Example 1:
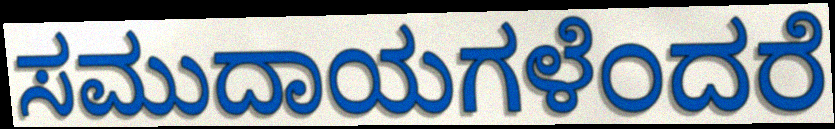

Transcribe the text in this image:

ಸಮುದಾಯಗಳೆಂದರೆ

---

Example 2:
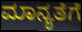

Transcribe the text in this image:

ಮಾನ್ಯತೆಗೆ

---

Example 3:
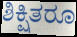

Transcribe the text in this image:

ಶಿಕ್ಷಿತರೂ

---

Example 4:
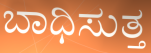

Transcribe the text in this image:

ಬಾಧಿಸುತ್ತ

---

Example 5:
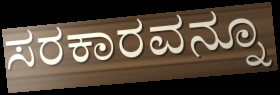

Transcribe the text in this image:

ಸರಕಾರವನ್ನೂ